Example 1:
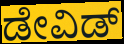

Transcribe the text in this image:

ಡೇವಿಡ್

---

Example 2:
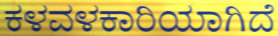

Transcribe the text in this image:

ಕಳವಳಕಾರಿಯಾಗಿದೆ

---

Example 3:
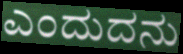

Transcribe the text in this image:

ಎಂದುದನು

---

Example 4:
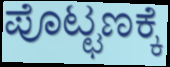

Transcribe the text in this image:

ಪೊಟ್ಟಣಕ್ಕೆ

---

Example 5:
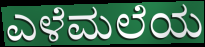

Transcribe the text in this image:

ಎಳೆಮಲೆಯ